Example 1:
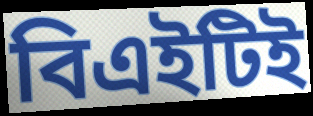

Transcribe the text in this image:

বিএইটিই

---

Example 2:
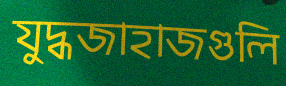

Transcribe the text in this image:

যুদ্ধজাহাজগুলি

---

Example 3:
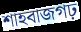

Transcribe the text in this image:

শাহবাজগঢ়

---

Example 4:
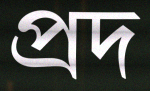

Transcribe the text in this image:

প্রদ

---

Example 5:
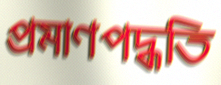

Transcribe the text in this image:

প্রমাণপদ্ধতি